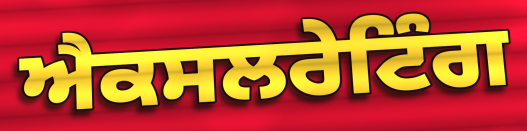
ਐਕਸਲਰੇਟਿੰਗ